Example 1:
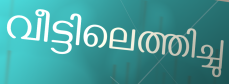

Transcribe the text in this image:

വീട്ടിലെത്തിച്ചു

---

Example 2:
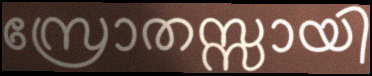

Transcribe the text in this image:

സ്രോതസ്സായി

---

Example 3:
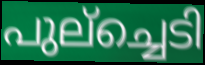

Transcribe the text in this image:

പുല്ച്ചെടി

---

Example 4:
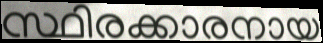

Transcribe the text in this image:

സ്ഥിരക്കാരനായ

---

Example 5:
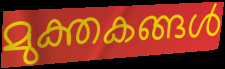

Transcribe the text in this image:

മുക്തകങ്ങൾ